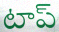
టాప్